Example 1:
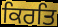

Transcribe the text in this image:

ਕਿਰਤਿ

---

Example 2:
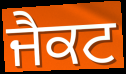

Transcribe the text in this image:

ਜੈਕਟ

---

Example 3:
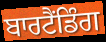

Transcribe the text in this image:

ਬਾਰਟੈਂਡਿੰਗ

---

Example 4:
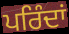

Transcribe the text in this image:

ਪਰਿੰਦਾਂ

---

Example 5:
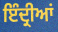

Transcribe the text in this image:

ਇੰਦ੍ਰੀਆਂ